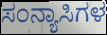
ಸಂನ್ಯಾಸಿಗಳ